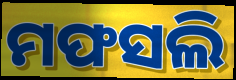
ମଫସଲି